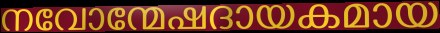
നവോന്മേഷദായകമായ